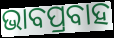
ଭାବପ୍ରବାହ